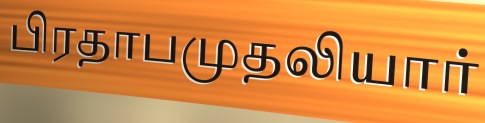
பிரதாபமுதலியார்